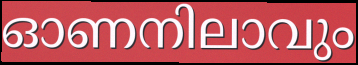
ഓണനിലാവും